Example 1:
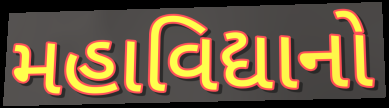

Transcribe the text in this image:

મહાવિદ્યાનો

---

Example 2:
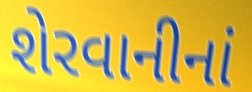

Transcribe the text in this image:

શેરવાનીનાં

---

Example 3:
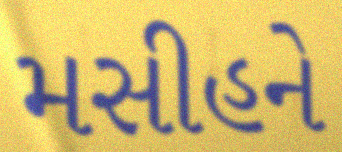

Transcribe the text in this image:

મસીહને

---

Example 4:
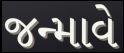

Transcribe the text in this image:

જન્માવે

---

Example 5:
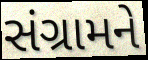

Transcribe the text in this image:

સંગ્રામને